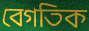
বেগতিক